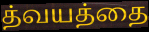
த்வயத்தை